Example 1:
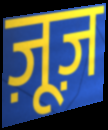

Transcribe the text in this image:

ज़ूज़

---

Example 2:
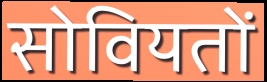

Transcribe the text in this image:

सोवियतों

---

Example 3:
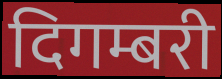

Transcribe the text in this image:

दिगम्बरी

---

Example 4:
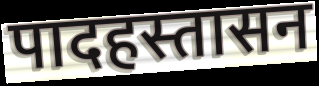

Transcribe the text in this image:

पादहस्तासन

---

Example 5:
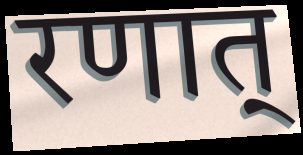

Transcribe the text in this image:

रणात्